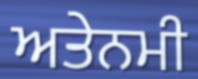
ਅਤੇਨਮੀ